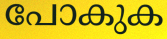
പോകുക